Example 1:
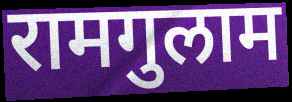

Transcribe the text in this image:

रामगुलाम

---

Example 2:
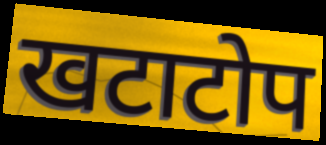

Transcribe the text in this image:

खटाटोप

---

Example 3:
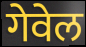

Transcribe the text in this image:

गेवेल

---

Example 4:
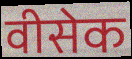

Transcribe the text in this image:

वीसेक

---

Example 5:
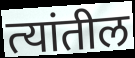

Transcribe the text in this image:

त्‍यांतील